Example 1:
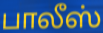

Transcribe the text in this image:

பாலீஸ்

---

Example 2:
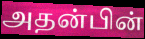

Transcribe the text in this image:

அதன்பின்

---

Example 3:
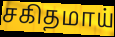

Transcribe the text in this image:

சகிதமாய்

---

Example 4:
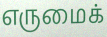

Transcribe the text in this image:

எருமைக்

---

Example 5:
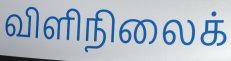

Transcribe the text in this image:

விளிநிலைக்